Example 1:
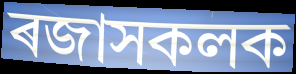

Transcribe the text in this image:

ৰজাসকলক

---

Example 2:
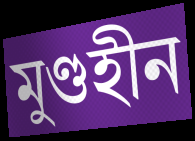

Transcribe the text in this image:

মুণ্ডহীন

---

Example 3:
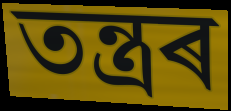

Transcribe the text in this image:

তন্ত্ৰৰ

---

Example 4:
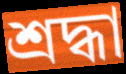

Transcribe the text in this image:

শ্ৰদ্ধা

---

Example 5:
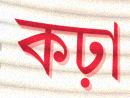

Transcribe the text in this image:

কঢ়া